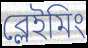
ব্লেইমিং